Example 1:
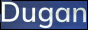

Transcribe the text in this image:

Dugan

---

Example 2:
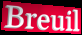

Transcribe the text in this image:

Breuil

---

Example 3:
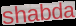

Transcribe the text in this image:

shabda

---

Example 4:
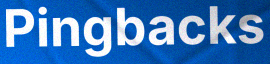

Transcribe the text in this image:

Pingbacks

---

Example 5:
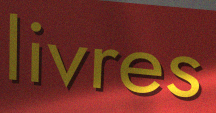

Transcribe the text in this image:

livres